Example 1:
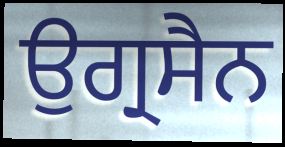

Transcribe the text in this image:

ਉਗ੍ਰਸੈਨ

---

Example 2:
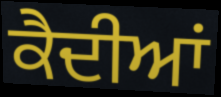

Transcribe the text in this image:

ਕੈਦੀਆਂ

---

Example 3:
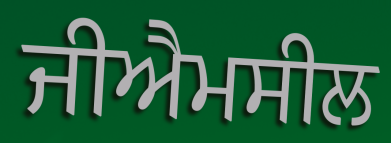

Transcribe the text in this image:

ਜੀਐਮਸੀਲ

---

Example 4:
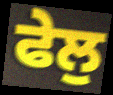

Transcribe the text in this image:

ਫੇਲੁ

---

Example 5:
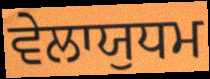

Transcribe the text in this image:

ਵੇਲਾਯੁਧਮ